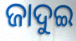
ଜାଦୁଇ